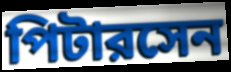
পিটারসেন